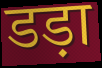
डड़ा